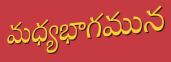
మధ్యభాగమున